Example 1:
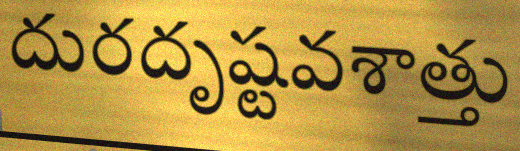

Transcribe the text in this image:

దురదృష్టవశాత్తు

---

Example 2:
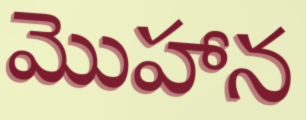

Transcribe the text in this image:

మొహాన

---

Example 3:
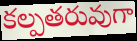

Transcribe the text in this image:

కల్పతరువుగా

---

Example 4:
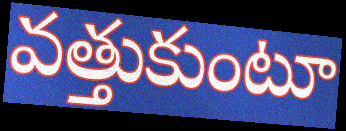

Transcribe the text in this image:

వత్తుకుంటూ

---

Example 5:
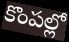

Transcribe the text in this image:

కొంపల్లో